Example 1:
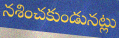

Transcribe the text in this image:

నశించకుండునట్లు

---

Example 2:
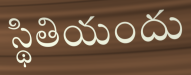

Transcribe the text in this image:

స్థితియందు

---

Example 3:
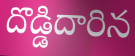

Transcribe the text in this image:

దొడ్డిదారిన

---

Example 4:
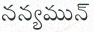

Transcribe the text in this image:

నన్యమున్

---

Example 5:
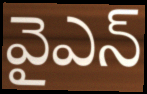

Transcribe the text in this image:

వైఎన్